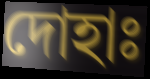
দোহাঃ